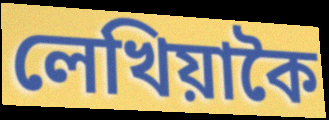
লেখিয়াকৈ